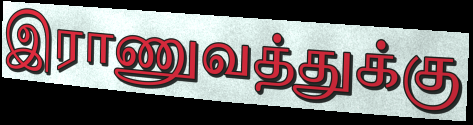
இராணுவத்துக்கு